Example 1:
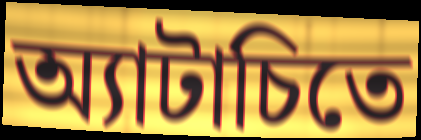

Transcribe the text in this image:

অ্যাটাচিতে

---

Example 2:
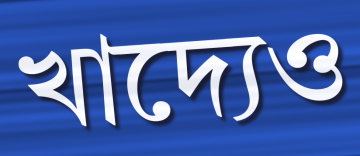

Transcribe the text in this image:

খাদ্যেও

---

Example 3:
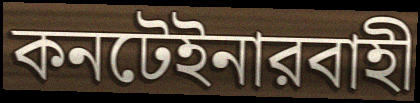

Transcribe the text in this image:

কনটেইনারবাহী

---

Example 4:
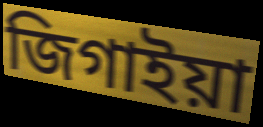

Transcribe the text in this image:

জিগাইয়া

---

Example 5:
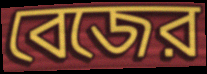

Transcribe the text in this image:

বেজের